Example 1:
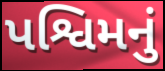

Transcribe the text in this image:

પશ્વિમનું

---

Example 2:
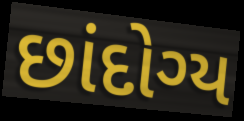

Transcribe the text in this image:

છાંદોગ્ય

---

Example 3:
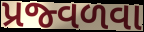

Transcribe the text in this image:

પ્રજ્વળવા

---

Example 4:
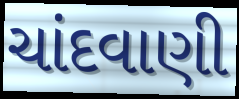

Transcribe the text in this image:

ચાંદવાણી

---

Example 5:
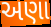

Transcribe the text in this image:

અણા